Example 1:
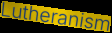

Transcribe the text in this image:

Lutheranism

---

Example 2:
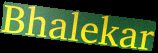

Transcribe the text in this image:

Bhalekar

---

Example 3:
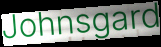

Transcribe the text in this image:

Johnsgard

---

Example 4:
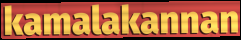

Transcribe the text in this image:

kamalakannan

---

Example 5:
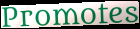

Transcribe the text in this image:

Promotes